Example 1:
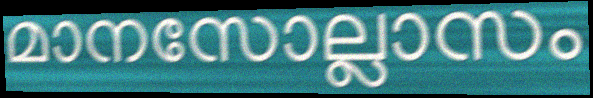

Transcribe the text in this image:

മാനസോല്ലാസം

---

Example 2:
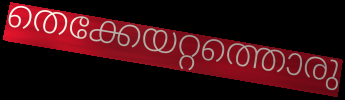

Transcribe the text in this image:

തെക്കേയറ്റത്തൊരു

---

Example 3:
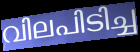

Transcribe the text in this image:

വിലപിടിച്ച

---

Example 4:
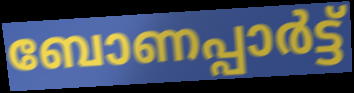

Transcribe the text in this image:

ബോണപ്പാർട്ട്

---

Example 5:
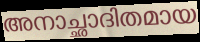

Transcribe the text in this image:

അനാച്ഛാദിതമായ